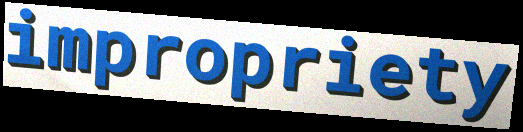
impropriety